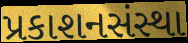
પ્રકાશનસંસ્થા